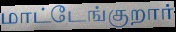
மாட்டேங்குறார்